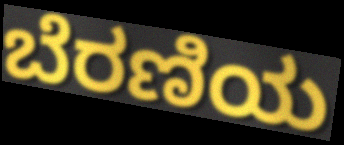
ಬೆರಣಿಯ